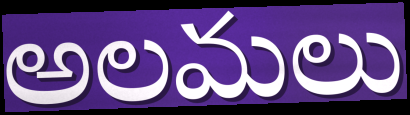
అలమలు